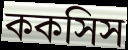
ককসিস